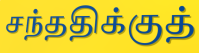
சந்ததிக்குத்